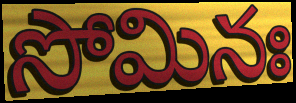
సోమినః